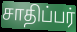
சாதிப்பர்